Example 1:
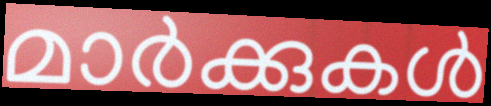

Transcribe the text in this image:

മാർക്കുകൾ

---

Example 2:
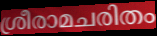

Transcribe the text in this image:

ശ്രീരാമചരിതം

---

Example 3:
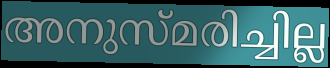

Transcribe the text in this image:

അനുസ്മരിച്ചില്ല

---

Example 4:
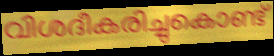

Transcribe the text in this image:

വിശദീകരിച്ചുകൊണ്ട്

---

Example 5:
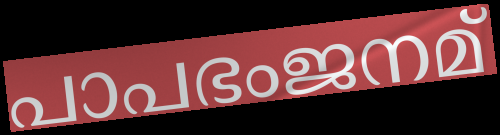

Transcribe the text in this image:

പാപഭംജനമ്